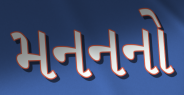
મનનનો